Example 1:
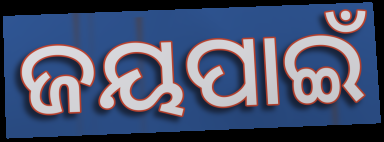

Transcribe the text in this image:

ଜୟପାଇଁ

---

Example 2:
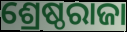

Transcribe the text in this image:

ଶ୍ରେଷ୍ଠରାଜା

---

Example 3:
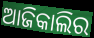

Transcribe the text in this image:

ଆଜିକାଲିର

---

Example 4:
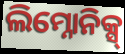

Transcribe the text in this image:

ଲିମ୍ନୋନିକ୍ସ୍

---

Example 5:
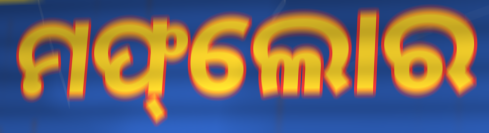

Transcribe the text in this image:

ମଫ୍‌ଲୋର